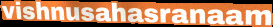
vishnusahasranaam